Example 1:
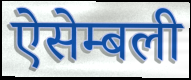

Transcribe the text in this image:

ऐसेम्बली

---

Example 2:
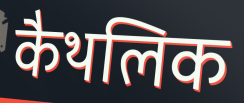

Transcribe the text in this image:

कैथलिक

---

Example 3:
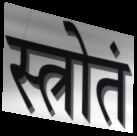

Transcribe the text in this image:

स्त्रोतं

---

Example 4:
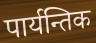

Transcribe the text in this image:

पार्यन्तिक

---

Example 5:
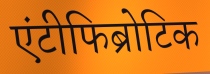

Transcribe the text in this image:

एंटीफिब्रोटिक